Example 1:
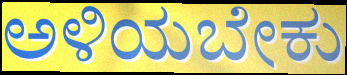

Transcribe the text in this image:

ಅಳಿಯಬೇಕು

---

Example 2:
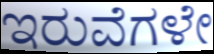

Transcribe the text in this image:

ಇರುವೆಗಳೇ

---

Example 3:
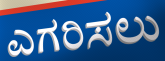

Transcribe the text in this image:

ಎಗರಿಸಲು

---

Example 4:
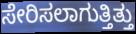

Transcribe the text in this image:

ಸೇರಿಸಲಾಗುತ್ತಿತ್ತು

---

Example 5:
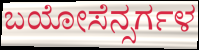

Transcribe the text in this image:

ಬಯೋಸೆನ್ಸರ್ಗಳ